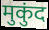
मुकुंद